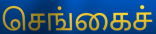
செங்கைச்